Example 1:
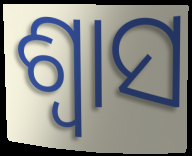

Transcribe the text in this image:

ଶ୍ୱାସ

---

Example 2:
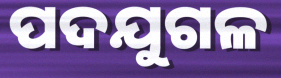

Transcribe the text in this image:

ପଦଯୁଗଳ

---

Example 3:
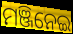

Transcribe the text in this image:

ମଞ୍ଜିନେଇ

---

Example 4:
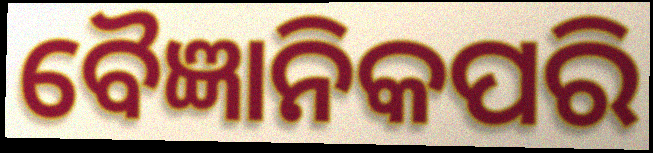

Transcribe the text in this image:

ବୈଜ୍ଞାନିକପରି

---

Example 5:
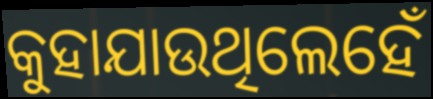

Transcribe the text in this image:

କୁହାଯାଉଥିଲେହେଁ